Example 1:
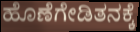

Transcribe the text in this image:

ಹೊಣೆಗೇಡಿತನಕ್ಕೆ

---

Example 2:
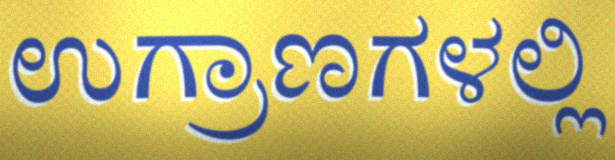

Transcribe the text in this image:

ಉಗ್ರಾಣಗಳಲ್ಲಿ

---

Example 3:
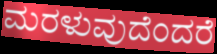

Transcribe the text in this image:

ಮರಳುವುದೆಂದರೆ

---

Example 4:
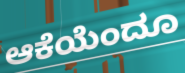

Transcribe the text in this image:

ಆಕೆಯೆಂದೂ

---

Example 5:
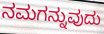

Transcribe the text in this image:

ನಮಗನ್ನುವುದು